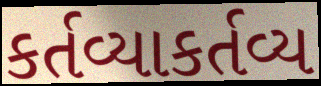
કર્તવ્યાકર્તવ્ય